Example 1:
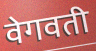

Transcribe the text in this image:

वेगवती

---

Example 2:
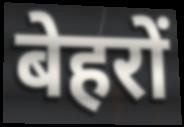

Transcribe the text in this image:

बेहरों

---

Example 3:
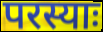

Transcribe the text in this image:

परस्याः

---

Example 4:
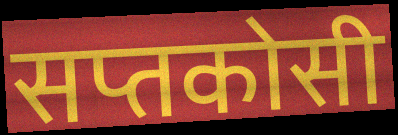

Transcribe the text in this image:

सप्तकोसी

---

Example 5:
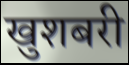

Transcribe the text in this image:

खुशबरी